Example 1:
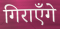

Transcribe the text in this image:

गिराएँगे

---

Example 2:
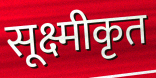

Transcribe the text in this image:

सूक्ष्मीकृत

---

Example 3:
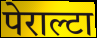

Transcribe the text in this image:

पेराल्टा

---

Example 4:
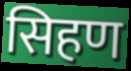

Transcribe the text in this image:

सिहण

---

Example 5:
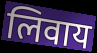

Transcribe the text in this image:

लिवाय